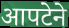
आपटेने